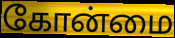
கோன்மை